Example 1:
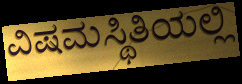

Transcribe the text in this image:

ವಿಷಮಸ್ಥಿತಿಯಲ್ಲಿ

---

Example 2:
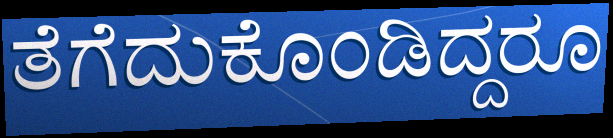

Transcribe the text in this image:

ತೆಗೆದುಕೊಂಡಿದ್ದರೂ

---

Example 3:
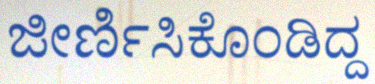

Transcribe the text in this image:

ಜೀರ್ಣಿಸಿಕೊಂಡಿದ್ದ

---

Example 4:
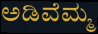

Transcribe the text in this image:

ಅಡಿವೆಮ್ಮ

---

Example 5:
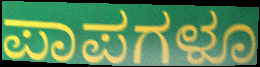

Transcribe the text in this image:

ಪಾಪಗಳೂ